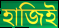
হাজিই